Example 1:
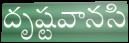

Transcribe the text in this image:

దృష్టవానసి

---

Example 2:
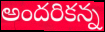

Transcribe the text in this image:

అందరికన్న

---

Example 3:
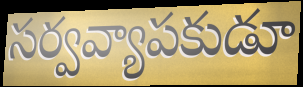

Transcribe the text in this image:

సర్వవ్యాపకుడూ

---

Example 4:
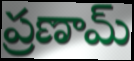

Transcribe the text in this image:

ప్రణామ్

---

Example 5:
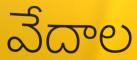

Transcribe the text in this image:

వేదాల